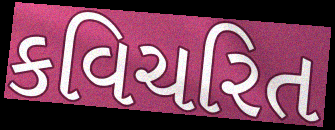
કવિચરિત